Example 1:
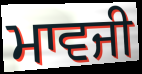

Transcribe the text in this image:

ਮਾਵਜੀ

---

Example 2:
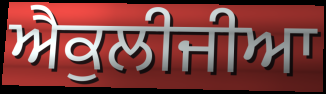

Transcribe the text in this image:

ਐਕੁਲੀਜੀਆ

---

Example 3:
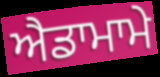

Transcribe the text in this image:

ਐਡਾਮਾਮੇ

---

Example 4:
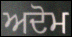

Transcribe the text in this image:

ਅਦੋਮ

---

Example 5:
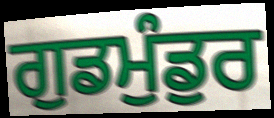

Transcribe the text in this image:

ਗੁਡਮੁੰਡੁਰ